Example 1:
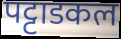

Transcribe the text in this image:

पट्टाडकल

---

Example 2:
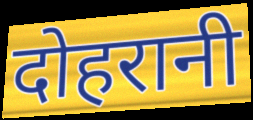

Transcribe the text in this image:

दोहरानी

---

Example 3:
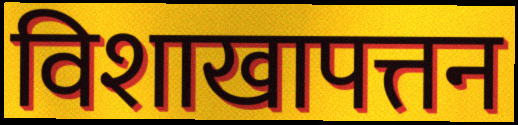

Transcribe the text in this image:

विशाखापत्तन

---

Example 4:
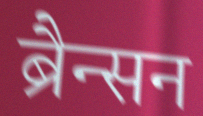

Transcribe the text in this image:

ब्रैन्सन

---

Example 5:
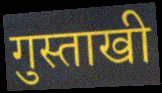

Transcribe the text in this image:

गुस्ताखी